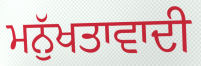
ਮਨੁੱਖਤਾਵਾਦੀ